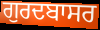
ਗੁਰਦਬਾਸਰ